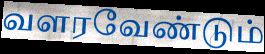
வளரவேண்டும்